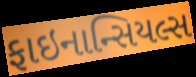
ફાઇનાન્સિયલ્સ